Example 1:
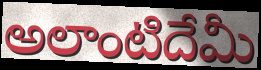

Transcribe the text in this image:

అలాంటిదేమీ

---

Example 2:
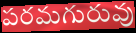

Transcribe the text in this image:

పరమగురువు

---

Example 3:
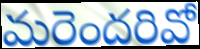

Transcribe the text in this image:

మరెందరివో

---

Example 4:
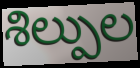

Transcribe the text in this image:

శిల్పుల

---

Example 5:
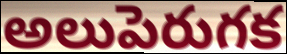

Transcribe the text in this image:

అలుపెరుగక